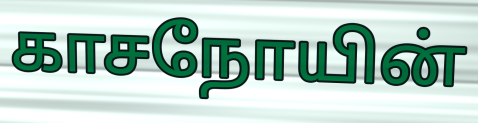
காசநோயின்